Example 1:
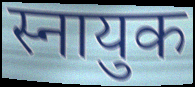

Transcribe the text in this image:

स्नायुक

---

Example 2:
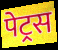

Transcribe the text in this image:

पेट्रस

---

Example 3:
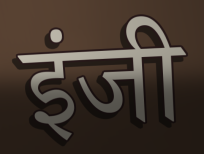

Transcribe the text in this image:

इंजी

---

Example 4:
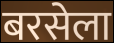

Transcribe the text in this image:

बरसेला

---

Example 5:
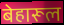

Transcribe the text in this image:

बेहारूल